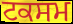
ਟਕਸਮ